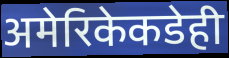
अमेरिकेकडेही